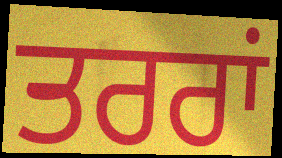
ਤਰਰਾਂ